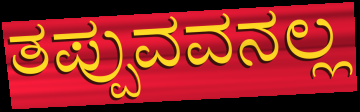
ತಪ್ಪುವವನಲ್ಲ